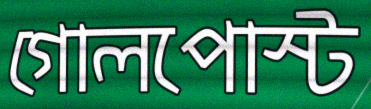
গোলপোস্ট